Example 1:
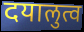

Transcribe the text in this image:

दयालुत्व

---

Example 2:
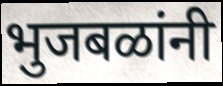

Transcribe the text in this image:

भुजबळांनी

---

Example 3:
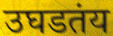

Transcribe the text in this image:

उघडतंय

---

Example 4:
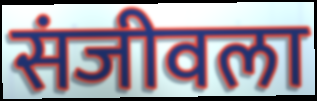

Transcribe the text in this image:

संजीवला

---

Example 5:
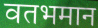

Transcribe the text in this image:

वतभमान